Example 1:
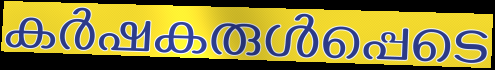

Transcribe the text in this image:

കർഷകരുൾപ്പെടെ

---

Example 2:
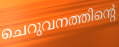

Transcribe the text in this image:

ചെറുവനത്തിന്റെ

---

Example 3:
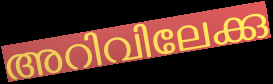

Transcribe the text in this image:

അറിവിലേക്കു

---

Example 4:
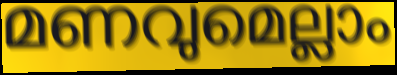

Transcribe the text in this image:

മണവുമെല്ലാം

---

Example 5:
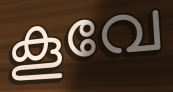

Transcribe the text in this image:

കൂവേ